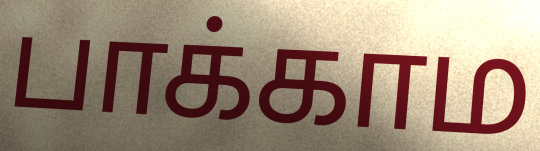
பாக்காம